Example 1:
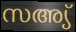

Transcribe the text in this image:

സഅ്യ്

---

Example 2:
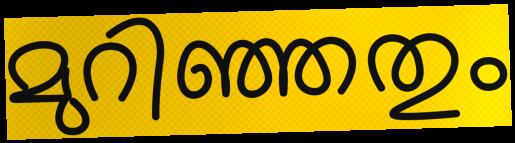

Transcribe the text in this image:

മുറിഞ്ഞതും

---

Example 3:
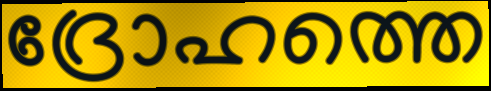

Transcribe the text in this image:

ദ്രോഹത്തെ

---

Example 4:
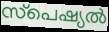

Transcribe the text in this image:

സ്‌പെഷ്യൽ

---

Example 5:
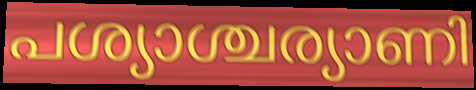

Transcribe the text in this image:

പശ്യാശ്ചര്യാണി